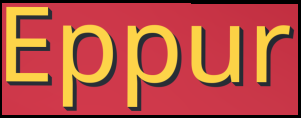
Eppur